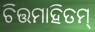
ଚିତ୍ତମାହିତମ୍